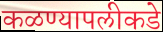
कळण्यापलीकडे